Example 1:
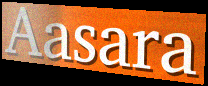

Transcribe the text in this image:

Aasara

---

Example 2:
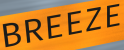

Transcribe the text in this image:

BREEZE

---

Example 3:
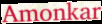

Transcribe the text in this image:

Amonkar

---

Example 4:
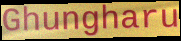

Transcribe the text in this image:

Ghungharu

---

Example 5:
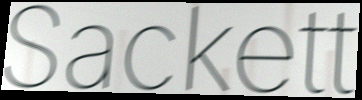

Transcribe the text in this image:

Sackett